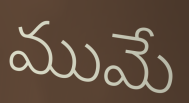
ముమే